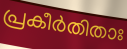
പ്രകീർതിതാഃ